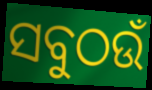
ସବୁଠଉଁ